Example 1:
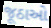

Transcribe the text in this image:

જૂઠાઓ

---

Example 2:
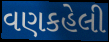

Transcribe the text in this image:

વણકહેલી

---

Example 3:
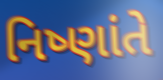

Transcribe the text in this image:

નિષ્ણાંતે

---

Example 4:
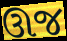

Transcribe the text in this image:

ઊજ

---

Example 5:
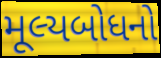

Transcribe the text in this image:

મૂલ્યબોધનો